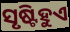
ସୃଷ୍ଟିହୁଏ